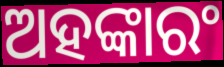
ଅହଙ୍କାରଂ